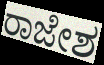
ರಾಜೇಶ